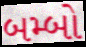
બમ્બો